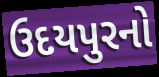
ઉદયપુરનો